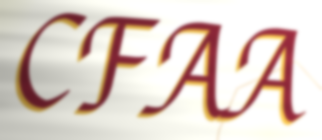
CFAA